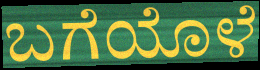
ಬಗೆಯೊಳೆ